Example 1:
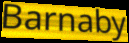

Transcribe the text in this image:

Barnaby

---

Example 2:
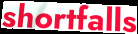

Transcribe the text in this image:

shortfalls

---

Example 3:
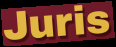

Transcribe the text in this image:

Juris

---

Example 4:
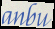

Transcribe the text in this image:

anbu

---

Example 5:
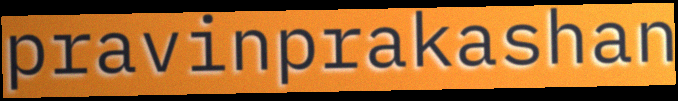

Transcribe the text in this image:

pravinprakashan